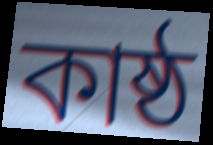
কাষ্ঠ